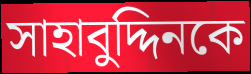
সাহাবুদ্দিনকে